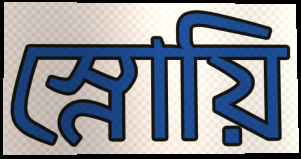
স্নোয়ি